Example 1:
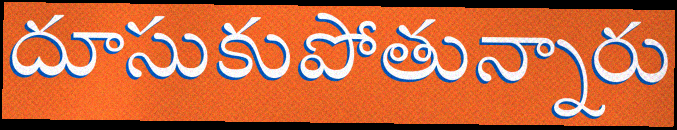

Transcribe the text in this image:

దూసుకుపోతున్నారు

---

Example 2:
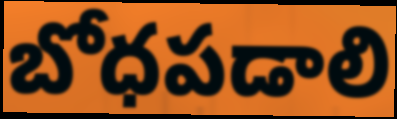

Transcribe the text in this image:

బోధపడాలి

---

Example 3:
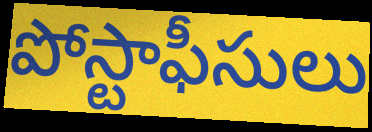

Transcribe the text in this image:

పోస్టాఫీసులు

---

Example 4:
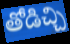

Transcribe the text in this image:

తోడిచ్చి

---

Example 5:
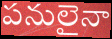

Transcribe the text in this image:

పనులైనా